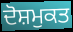
ਦੋਸ਼ਮੁਕਤ